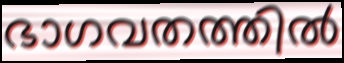
ഭാഗവതത്തിൽ